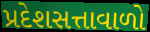
પ્રદેશસત્તાવાળો